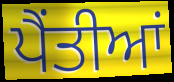
ਪੈਂਤੀਆਂ